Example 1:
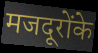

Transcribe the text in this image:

मजदूरोंके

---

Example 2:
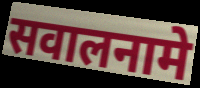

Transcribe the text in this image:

सवालनामे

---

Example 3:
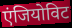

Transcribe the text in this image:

एंजियोविट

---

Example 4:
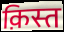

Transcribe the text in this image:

क़िस्त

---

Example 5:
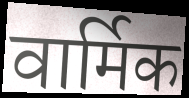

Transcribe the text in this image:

वार्मिक